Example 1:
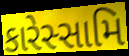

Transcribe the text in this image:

કારેસ્સામિ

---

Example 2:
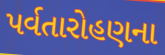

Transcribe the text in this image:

પર્વતારોહણના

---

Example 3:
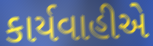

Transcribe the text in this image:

કાર્યવાહીએ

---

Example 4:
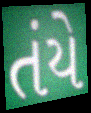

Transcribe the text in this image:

તંયે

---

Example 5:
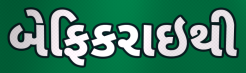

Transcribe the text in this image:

બેફિકરાઇથી